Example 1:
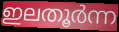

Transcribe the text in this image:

ഇലതൂർന്ന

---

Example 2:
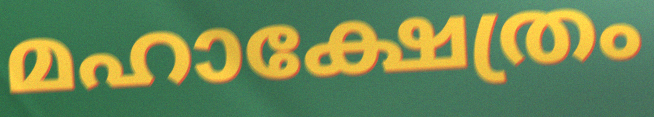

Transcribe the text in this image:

മഹാക്ഷേത്രം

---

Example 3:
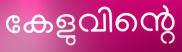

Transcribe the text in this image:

കേളുവിന്റെ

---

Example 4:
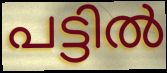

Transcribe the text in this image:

പട്ടിൽ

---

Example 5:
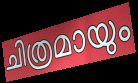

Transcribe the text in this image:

ചിത്രമായും